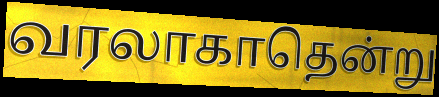
வரலாகாதென்று